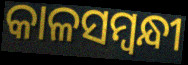
କାଳସମ୍ଵନ୍ଧୀ